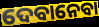
ଦେବାନେବା